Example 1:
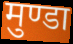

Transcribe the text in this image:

मुण्डा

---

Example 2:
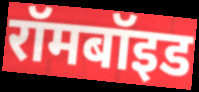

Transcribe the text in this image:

रॉमबॉइड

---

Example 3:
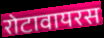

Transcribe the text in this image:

रोटावायरस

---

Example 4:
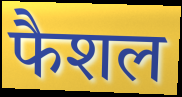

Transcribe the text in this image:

फैशल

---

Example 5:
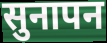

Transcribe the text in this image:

सुनापन